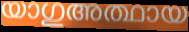
യാഗുഅത്ഥായ